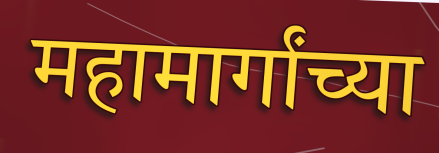
महामार्गांच्या